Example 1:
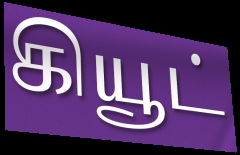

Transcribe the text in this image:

கியூட்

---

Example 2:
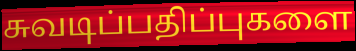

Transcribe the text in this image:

சுவடிப்பதிப்புகளை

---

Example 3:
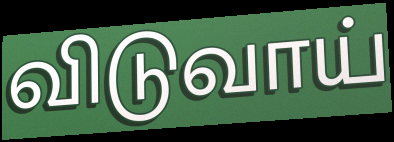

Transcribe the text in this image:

விடுவாய்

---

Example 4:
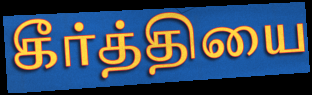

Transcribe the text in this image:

கீர்த்தியை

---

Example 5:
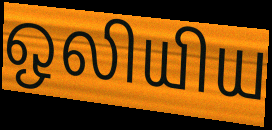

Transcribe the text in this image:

ஒலியிய